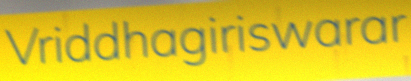
Vriddhagiriswarar